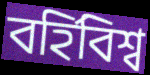
বর্হিবিশ্ব